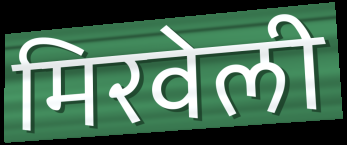
मिरवेली